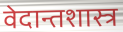
वेदान्तशास्त्र